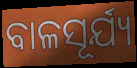
ବାଳସୂର୍ଯ୍ୟ